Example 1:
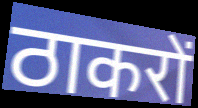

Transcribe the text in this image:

ठाकरों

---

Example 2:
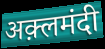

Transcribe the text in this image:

अक़्लमंदी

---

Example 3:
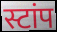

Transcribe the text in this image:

स्टांप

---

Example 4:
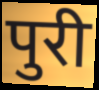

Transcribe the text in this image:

पुरी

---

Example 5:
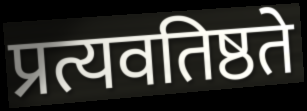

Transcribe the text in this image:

प्रत्यवतिष्ठते